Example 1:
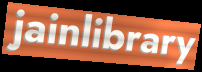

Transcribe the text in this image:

jainlibrary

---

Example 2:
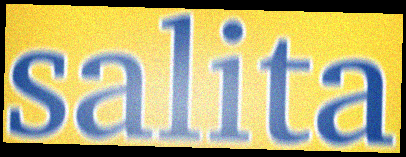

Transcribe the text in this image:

salita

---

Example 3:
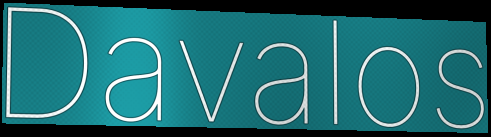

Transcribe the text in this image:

Davalos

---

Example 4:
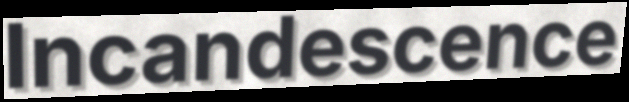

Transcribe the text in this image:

Incandescence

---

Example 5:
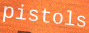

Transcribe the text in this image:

pistols